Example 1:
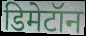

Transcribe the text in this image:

डिमेटॉन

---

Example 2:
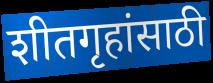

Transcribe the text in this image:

शीतगृहांसाठी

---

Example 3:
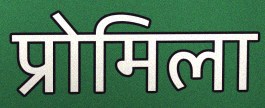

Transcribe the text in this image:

प्रोमिला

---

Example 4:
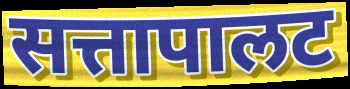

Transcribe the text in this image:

सत्तापालट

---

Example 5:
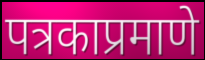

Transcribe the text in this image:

पत्रकाप्रमाणे